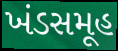
ખંડસમૂહ